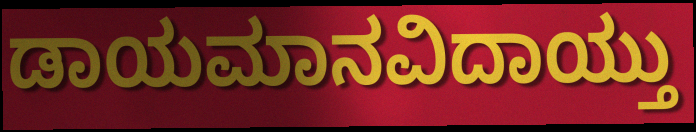
ಡಾಯಮಾನವಿದಾಯ್ತು